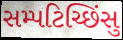
સમ્પટિચ્છિંસુ